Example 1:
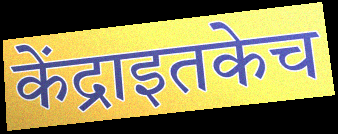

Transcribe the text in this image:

केंद्राइतकेच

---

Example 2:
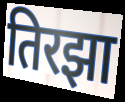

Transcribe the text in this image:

तिरझा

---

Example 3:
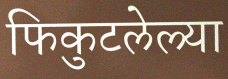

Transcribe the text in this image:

फिकुटलेल्या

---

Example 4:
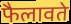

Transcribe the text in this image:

फैलावते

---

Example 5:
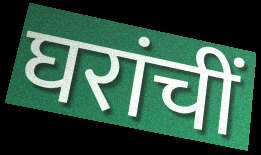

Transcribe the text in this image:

घरांचीं